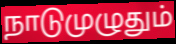
நாடுமுழுதும்